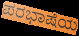
ಪರಭಾಷೆಯ